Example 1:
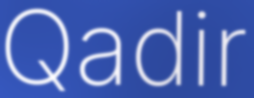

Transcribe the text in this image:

Qadir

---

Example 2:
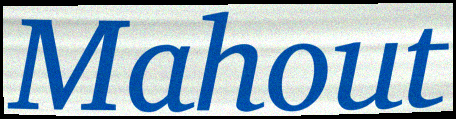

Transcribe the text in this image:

Mahout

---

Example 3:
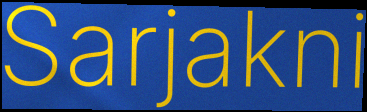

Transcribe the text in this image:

Sarjakni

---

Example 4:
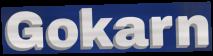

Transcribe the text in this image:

Gokarn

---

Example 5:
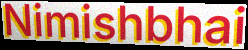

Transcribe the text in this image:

Nimishbhai